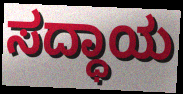
ಸದ್ಧಾಯ